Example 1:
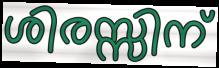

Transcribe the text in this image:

ശിരസ്സിന്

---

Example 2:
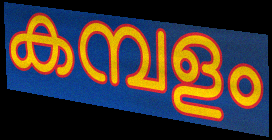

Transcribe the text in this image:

കമ്പളം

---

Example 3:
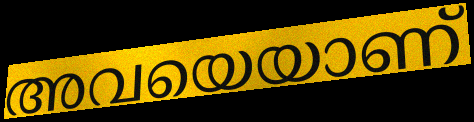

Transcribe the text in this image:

അവയെയാണ്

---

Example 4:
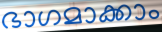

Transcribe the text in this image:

ഭാഗമാക്കാം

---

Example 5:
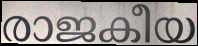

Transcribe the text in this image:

രാജകീയ